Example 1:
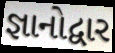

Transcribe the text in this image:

જ્ઞાનોદ્વાર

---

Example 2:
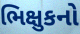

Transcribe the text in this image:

ભિક્ષુકનો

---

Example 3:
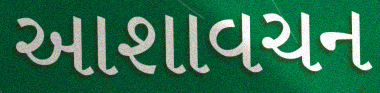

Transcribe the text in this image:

આશાવચન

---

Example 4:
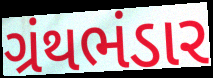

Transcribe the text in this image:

ગ્રંથભંડાર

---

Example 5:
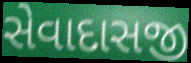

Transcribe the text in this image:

સેવાદાસજી